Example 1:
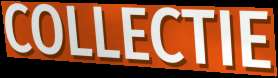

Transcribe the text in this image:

COLLECTIE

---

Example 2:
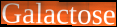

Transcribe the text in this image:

Galactose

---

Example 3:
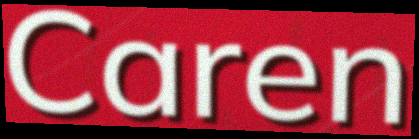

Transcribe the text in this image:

Caren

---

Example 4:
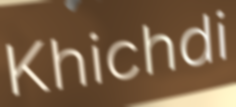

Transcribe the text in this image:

Khichdi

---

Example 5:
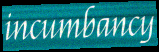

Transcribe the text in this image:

incumbancy